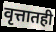
वृत्तातही